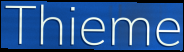
Thieme